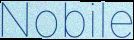
Nobile